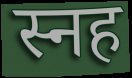
स्नह